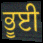
ਭੂਈ